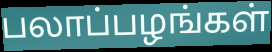
பலாப்பழங்கள்